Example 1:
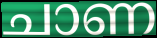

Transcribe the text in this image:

ചാണ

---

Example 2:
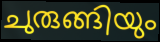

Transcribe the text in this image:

ചുരുങ്ങിയും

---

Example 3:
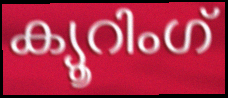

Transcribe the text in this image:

ക്യൂറിംഗ്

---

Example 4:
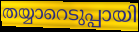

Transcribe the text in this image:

തയ്യാറെടുപ്പായി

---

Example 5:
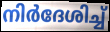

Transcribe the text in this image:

നിർദേശിച്ച്